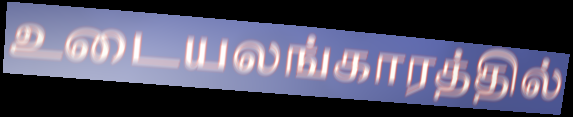
உடையலங்காரத்தில்